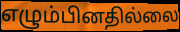
எழும்பினதில்லை